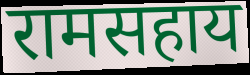
रामसहाय